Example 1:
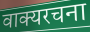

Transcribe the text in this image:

वाक्यरचना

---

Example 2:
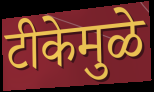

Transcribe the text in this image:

टीकेमुळे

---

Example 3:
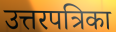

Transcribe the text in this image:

उत्तरपत्रिका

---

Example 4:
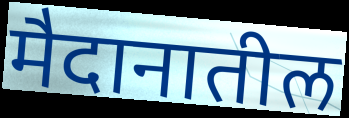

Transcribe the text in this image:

मैदानातील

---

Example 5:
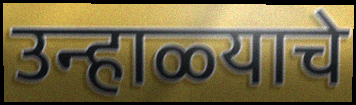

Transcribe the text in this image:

उन्हाळ्याचे